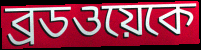
ব্রডওয়েকে